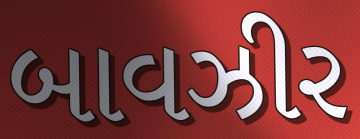
બાવઝીર